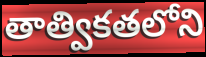
తాత్వికతలోని